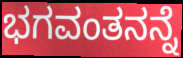
ಭಗವಂತನನ್ನೆ